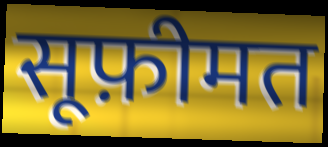
सूफ़ीमत